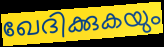
ഖേദിക്കുകയും